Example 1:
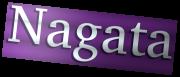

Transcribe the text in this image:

Nagata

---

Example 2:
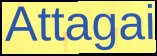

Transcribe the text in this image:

Attagai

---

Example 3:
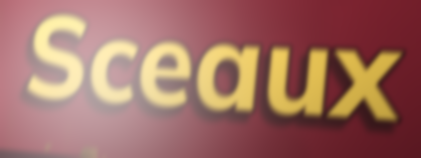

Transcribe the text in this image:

Sceaux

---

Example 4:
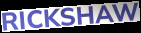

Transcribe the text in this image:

RICKSHAW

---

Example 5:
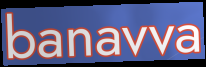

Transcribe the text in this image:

banavva